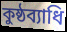
কুষ্ঠব্যাধি